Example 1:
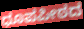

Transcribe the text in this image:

ಧೂಪಪೀಠದ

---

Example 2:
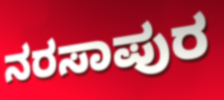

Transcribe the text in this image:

ನರಸಾಪುರ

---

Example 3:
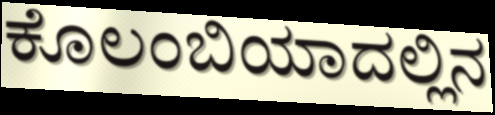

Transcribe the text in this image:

ಕೊಲಂಬಿಯಾದಲ್ಲಿನ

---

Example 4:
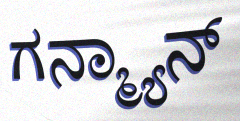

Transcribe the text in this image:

ಗನ್ಮ್ಯಾನ್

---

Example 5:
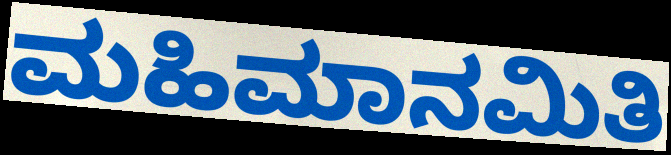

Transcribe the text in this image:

ಮಹಿಮಾನಮಿತಿ